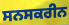
ਸਨਸਕਰੀਨ